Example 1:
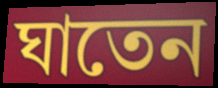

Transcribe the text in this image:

ঘাতেন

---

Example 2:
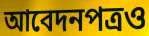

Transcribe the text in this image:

আবেদনপত্রও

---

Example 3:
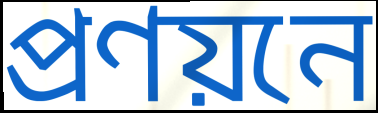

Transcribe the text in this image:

প্রণয়নে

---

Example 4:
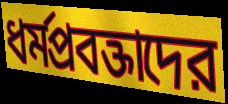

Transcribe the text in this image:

ধর্মপ্রবক্তাদের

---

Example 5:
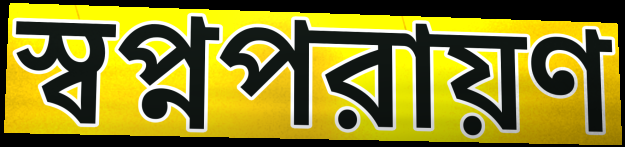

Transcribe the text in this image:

স্বপ্নপরায়ণ